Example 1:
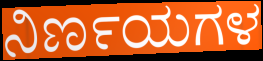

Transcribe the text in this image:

ನಿರ್ಣಯಗಳ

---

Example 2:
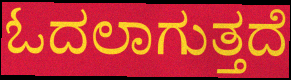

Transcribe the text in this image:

ಓದಲಾಗುತ್ತದೆ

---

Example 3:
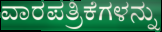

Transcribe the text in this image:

ವಾರಪತ್ರಿಕೆಗಳನ್ನು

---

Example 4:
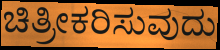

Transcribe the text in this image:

ಚಿತ್ರೀಕರಿಸುವುದು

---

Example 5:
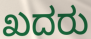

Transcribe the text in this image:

ಖದರು